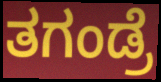
ತಗಂಡ್ರೆ